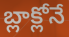
బ్లాక్లోనే